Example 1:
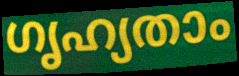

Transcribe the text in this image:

ഗൃഹ്യതാം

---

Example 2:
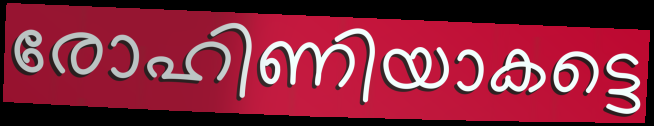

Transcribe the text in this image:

രോഹിണിയാകട്ടെ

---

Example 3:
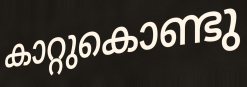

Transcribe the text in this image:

കാറ്റുകൊണ്ടു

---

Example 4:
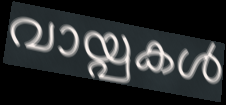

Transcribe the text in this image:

വായ്പകൾ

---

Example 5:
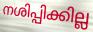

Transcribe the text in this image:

നശിപ്പിക്കില്ല